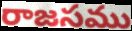
రాజసము